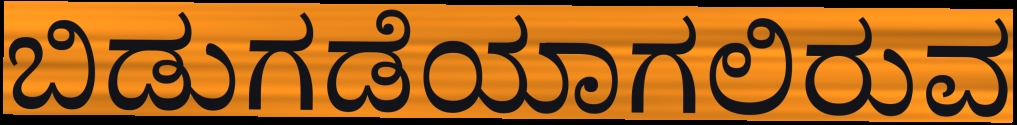
ಬಿಡುಗಡೆಯಾಗಲಿರುವ